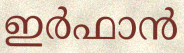
ഇർഫാൻ